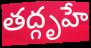
తద్గృహే